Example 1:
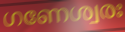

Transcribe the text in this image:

ഗണേശ്വരഃ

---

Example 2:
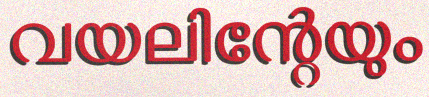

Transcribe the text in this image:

വയലിന്റേയും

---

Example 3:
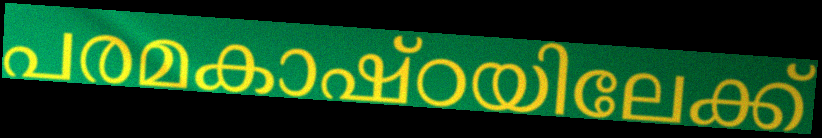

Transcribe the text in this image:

പരമകാഷ്ഠയിലേക്ക്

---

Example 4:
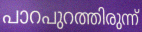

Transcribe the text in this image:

പാറപുറത്തിരുന്ന്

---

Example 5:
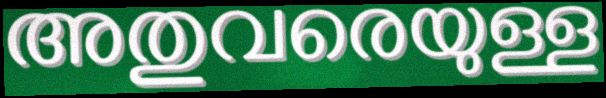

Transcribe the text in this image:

അതുവരെയുള്ള